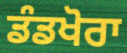
ਡੰਡਖੋਰਾ